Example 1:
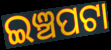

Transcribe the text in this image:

ଇଞ୍ଚପଟା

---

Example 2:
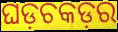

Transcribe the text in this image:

ଘଡ଼ଚକଡ଼ର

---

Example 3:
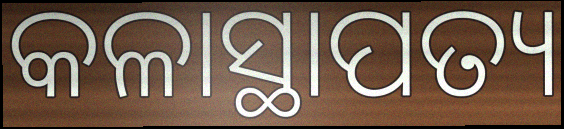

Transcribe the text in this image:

କଳାସ୍ଥାପତ୍ୟ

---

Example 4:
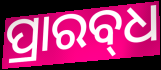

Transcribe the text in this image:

ପ୍ରାରବ୍‍ଧ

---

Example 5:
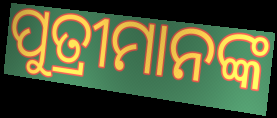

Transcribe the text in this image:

ପୁତ୍ରୀମାନଙ୍କ